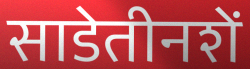
साडेतीनशें